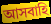
আসবাহি